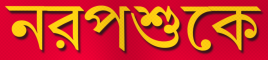
নরপশুকে